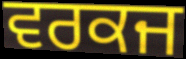
ਵਰਕਜ